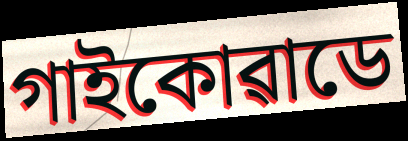
গাইকোৱাডে